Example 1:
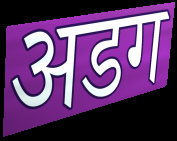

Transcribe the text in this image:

अडग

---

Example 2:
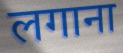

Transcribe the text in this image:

लगाना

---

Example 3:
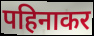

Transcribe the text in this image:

पहिनाकर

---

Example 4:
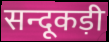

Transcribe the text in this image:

सन्दूकड़ी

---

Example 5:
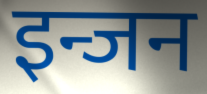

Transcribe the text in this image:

इन्जन